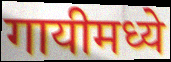
गायीमध्ये